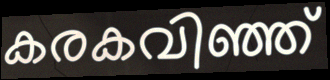
കരകവിഞ്ഞ്